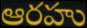
ఆరహు